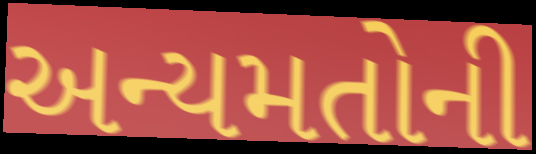
અન્યમતોની